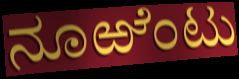
ನೂಱೆಂಟು